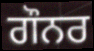
ਗੌਨਰ